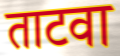
ताटवा